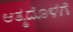
ಆತ್ಮದೊಳಗೆ